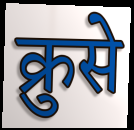
क्रुसे